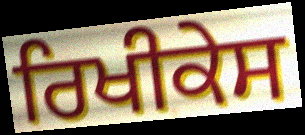
ਰਿਖੀਕੇਸ